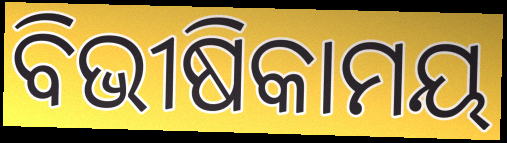
ବିଭୀଷିକାମୟ